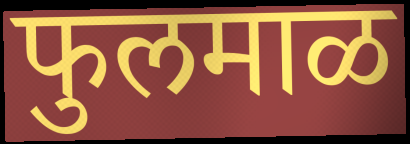
फुलमाळ